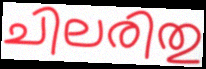
ചിലരിതു